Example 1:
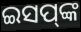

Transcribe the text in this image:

ଇସପ୍‌ଙ୍କ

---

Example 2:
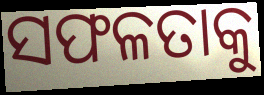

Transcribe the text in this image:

ସଫଳତାକୁ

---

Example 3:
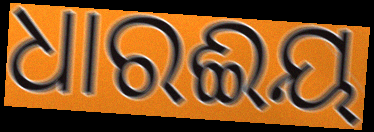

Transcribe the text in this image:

ଧାରଈୟ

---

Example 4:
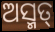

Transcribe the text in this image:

ଅସ୍ମତ୍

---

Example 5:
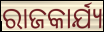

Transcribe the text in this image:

ରାଜକାର୍ଯ୍ୟ